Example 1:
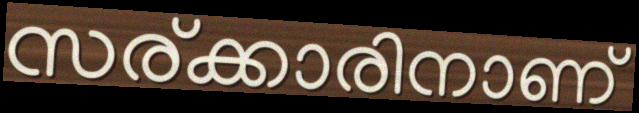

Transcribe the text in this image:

സര്ക്കാരിനാണ്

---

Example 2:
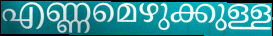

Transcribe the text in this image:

എണ്ണമെഴുക്കുള്ള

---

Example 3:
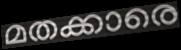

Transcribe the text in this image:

മതക്കാരെ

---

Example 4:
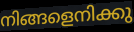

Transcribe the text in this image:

നിങ്ങളെനിക്കു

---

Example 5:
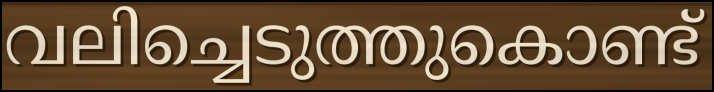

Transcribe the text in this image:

വലിച്ചെടുത്തുകൊണ്ട്